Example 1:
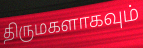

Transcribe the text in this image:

திருமகளாகவும்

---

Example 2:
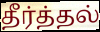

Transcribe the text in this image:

தீர்த்தல்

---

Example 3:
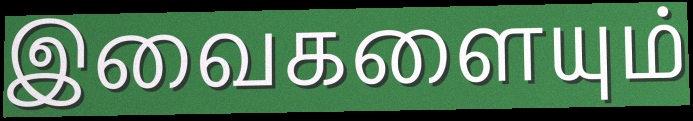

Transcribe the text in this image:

இவைகளையும்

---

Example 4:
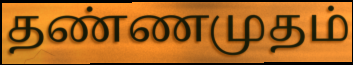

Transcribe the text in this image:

தண்ணமுதம்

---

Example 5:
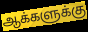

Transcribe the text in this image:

ஆக்களுக்கு